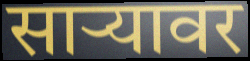
साऱ्यावर